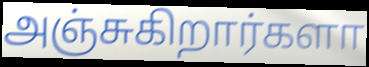
அஞ்சுகிறார்களா